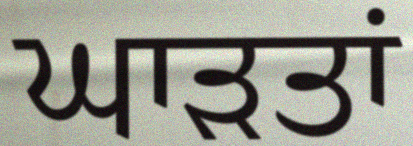
ਘਾਡ਼ਤਾਂ